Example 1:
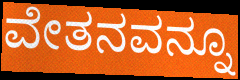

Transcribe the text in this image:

ವೇತನವನ್ನೂ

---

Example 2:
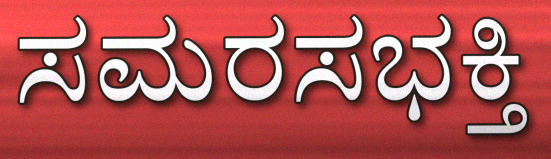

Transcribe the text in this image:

ಸಮರಸಭಕ್ತಿ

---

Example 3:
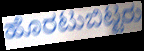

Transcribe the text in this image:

ಹೊರಟುಬಿಟ್ಟರು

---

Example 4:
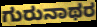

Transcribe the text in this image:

ಗುರುನಾಥರ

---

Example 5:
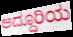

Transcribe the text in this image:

ಅದ್ದೂರಿಯ